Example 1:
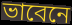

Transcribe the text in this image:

ভাবেনে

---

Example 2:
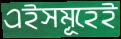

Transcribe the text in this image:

এইসমূহেই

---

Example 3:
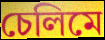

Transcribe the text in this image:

চেলিমে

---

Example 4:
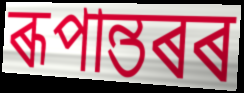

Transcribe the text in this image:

ৰূপান্তৰৰ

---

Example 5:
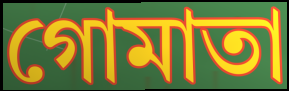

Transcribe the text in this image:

গোমাতা